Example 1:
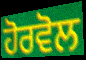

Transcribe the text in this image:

ਹੋਰਵੋਲ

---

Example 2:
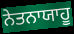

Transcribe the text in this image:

ਨੇਤਨਾਯਾਹੂ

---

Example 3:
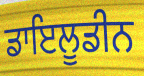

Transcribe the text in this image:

ਡਾਇਲੂਡੀਨ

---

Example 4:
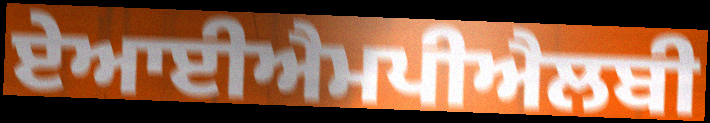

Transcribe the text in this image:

ਏਆਈਐਮਪੀਐਲਬੀ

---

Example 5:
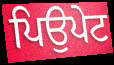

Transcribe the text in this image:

ਪਿਉਪੇਟ